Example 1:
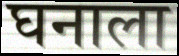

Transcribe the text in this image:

घनाला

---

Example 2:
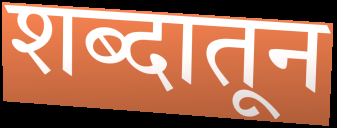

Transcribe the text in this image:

शब्दातून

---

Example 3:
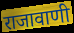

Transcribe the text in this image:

राजावाणी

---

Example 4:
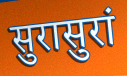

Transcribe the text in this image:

सुरासुरां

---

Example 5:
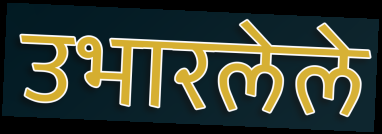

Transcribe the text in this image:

उभारलेले